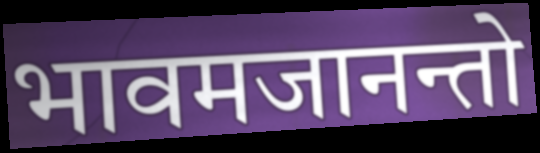
भावमजानन्तो